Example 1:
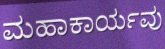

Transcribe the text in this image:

ಮಹಾಕಾರ್ಯವು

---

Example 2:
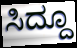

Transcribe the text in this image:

ಸಿದ್ದೂ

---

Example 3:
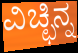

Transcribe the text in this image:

ವಿಚ್ಛಿನ್ನ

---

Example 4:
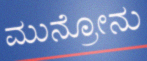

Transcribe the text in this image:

ಮುನ್ರೋನು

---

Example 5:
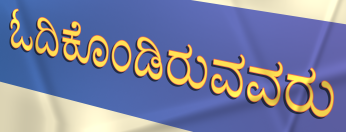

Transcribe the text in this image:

ಓದಿಕೊಂಡಿರುವವರು